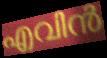
എവിൻ